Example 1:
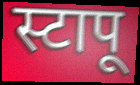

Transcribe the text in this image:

स्टापू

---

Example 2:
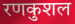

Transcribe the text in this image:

रणकुशल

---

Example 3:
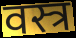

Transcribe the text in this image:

वस्त्र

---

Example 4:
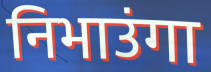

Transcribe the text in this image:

निभाउंगा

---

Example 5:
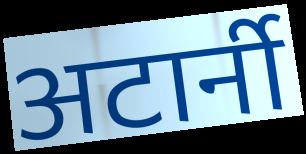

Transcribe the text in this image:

अटार्नी